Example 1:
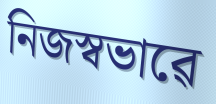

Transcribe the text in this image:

নিজস্বভাৱে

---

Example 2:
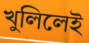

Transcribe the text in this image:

খুলিলেই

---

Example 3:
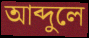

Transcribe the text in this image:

আব্দুলে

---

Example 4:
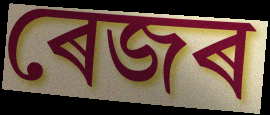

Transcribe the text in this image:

ৰেজৰ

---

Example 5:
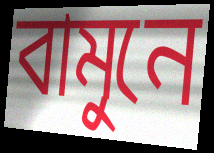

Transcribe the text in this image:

বামুনে